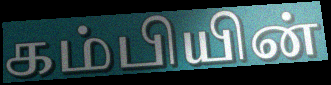
கம்பியின்